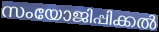
സംയോജിപ്പിക്കൽ